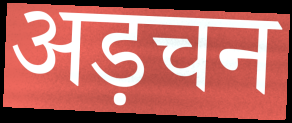
अड़चन